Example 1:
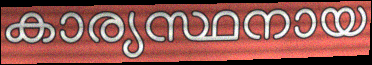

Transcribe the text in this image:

കാര്യസ്ഥനായ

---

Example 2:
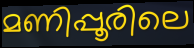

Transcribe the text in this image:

മണിപ്പൂരിലെ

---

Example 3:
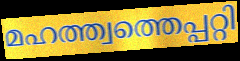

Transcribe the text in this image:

മഹത്ത്വത്തെപ്പറ്റി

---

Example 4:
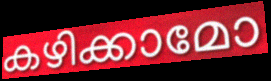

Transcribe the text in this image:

കഴിക്കാമോ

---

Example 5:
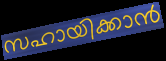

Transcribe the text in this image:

സഹായിക്കാൻ